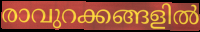
രാവുറക്കങ്ങളിൽ